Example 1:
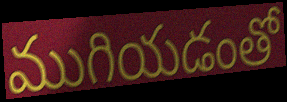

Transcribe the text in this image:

ముగియడంతో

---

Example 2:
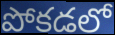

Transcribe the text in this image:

పోకడలో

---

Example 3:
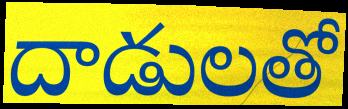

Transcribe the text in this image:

దాడులతో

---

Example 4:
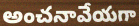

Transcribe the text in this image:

అంచనావేయగా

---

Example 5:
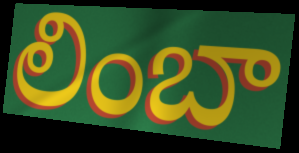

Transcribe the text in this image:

లింబా